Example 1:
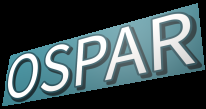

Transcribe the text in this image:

OSPAR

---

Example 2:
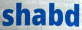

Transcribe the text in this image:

shabd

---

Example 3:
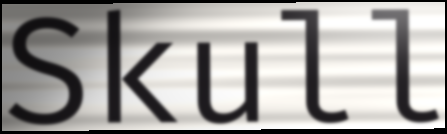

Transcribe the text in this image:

Skull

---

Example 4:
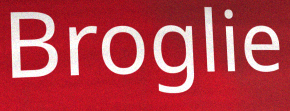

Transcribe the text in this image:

Broglie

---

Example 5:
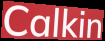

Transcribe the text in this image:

Calkin